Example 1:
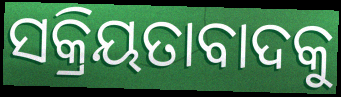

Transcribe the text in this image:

ସକ୍ରିୟତାବାଦକୁ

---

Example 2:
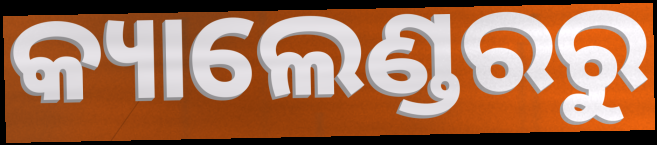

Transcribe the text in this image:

କ୍ୟାଲେଣ୍ଡରରୁ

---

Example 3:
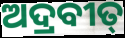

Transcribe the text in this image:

ଅଦ୍ରବୀତ୍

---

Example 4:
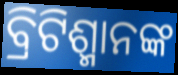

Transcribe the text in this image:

ବ୍ରିଟିଶ୍ମାନଙ୍କ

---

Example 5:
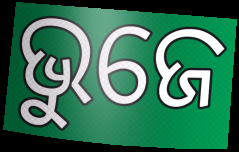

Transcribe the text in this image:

ଭୁଜେ